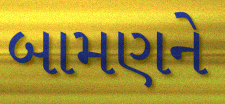
બામણને